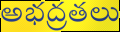
అభద్రతలు